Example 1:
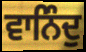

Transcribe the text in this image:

ਵਾਨਿੰਦੁ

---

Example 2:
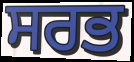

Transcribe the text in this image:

ਸਰਭ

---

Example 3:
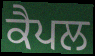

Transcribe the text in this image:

ਕੈਪਲ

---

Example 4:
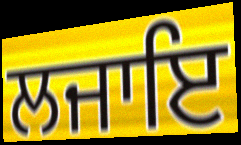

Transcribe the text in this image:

ਲਜਾਇ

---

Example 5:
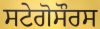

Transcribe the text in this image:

ਸਟੇਗੋਸੌਰਸ